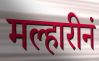
मल्हारीनं